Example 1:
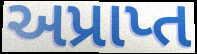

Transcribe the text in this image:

અપ્રાપ્ત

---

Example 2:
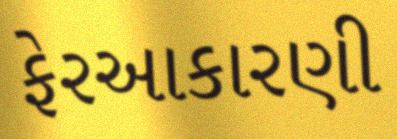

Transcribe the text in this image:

ફેરઆકારણી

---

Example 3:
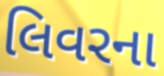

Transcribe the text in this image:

લિવરના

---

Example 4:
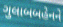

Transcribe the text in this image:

ગુલાબબહેનને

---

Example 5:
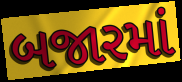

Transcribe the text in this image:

બજારમાં